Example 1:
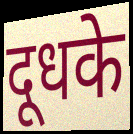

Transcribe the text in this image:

दूधके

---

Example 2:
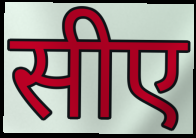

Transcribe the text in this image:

सीए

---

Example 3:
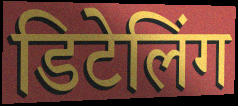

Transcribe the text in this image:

डिटेलिंग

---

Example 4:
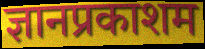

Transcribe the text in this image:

ज्ञानप्रकाशम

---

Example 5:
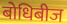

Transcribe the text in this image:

बोधिबीज